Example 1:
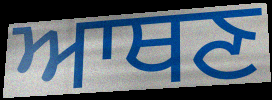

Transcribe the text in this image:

ਆਥਣ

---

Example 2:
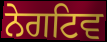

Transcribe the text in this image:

ਨੇਗਟਿਵ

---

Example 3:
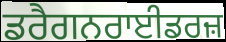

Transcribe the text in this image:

ਡਰੈਗਨਰਾਈਡਰਜ਼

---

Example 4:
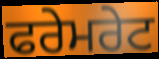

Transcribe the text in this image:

ਫਰੇਮਰੇਟ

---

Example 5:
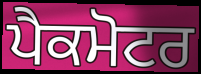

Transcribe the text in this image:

ਪੈਕਮੋਟਰ